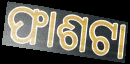
ଫାଶଟା